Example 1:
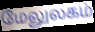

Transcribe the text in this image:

மேலுலகம்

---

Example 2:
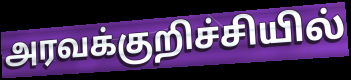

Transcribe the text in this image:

அரவக்குறிச்சியில்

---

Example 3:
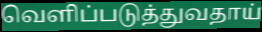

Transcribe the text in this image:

வெளிப்படுத்துவதாய்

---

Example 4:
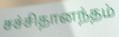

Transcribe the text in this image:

சச்சிதானந்தம்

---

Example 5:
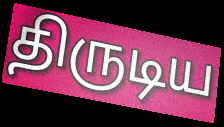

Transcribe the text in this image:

திருடிய